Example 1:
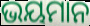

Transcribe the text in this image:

ଭୟମାନ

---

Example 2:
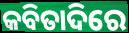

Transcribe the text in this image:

କବିତାଦିରେ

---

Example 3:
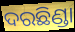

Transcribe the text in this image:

ଦରଛିଣ୍ଡା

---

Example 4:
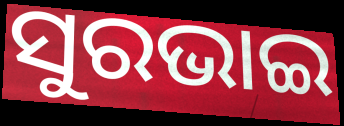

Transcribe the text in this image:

ସୁରଭାଇ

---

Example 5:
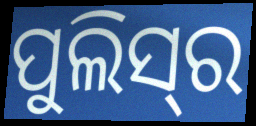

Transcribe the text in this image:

ପୁଲିସ୍‍ର